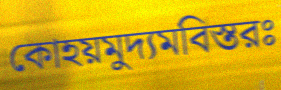
কোহয়মুদ্যমবিস্তরঃ